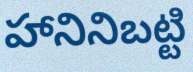
హానినిబట్టి